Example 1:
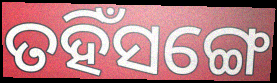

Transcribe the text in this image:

ତହିଁସଙ୍ଗେ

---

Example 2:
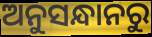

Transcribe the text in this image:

ଅନୁସନ୍ଧାନରୁ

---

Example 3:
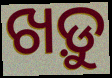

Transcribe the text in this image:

ଖଡ଼ୁ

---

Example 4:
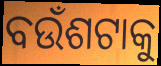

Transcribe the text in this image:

ବଉଁଶଟାକୁ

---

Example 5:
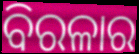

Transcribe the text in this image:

ବିରଳାର